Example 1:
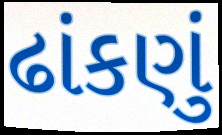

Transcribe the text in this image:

ઢાંકણું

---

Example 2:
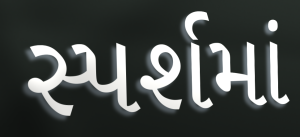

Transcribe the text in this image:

સ્પર્શમાં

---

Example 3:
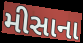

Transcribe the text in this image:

મીસાના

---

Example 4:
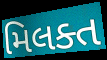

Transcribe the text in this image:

મિલક્ત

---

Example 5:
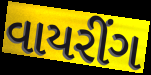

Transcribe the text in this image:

વાયરીંગ